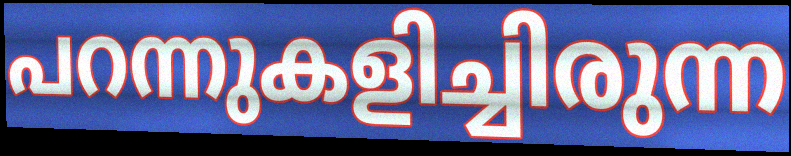
പറന്നുകളിച്ചിരുന്ന